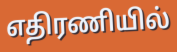
எதிரணியில்